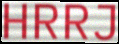
HRRJ